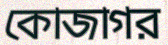
কোজাগর